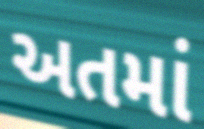
અતમાં